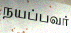
நயப்பவர்